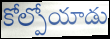
కోల్పోయాడు